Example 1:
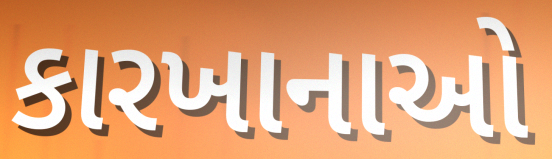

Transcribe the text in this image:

કારખાનાઓ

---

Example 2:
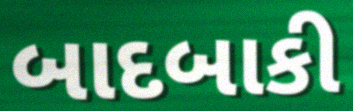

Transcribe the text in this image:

બાદબાકી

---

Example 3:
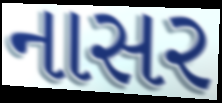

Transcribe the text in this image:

નાસર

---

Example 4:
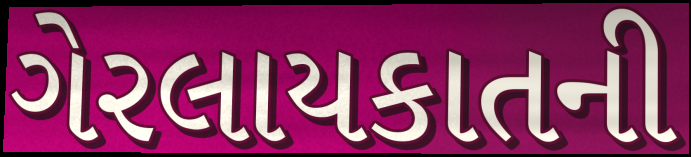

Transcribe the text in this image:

ગેરલાયકાતની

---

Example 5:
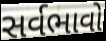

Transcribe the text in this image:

સર્વભાવો